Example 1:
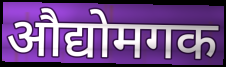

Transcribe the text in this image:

औद्योमगक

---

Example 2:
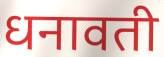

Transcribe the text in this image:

धनावती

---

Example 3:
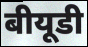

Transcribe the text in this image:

बीयूडी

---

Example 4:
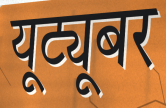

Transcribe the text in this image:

यूट्यूबर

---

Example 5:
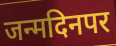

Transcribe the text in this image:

जन्मदिनपर